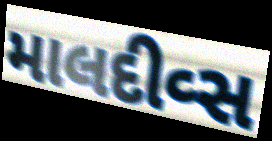
માલદીવ્સ